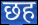
छह